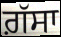
ਗ਼ੱਸਾ